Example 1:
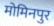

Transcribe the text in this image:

मोमिनपुर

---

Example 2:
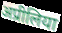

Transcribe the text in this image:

अप्रीलिया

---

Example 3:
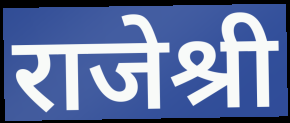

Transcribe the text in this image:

राजेश्री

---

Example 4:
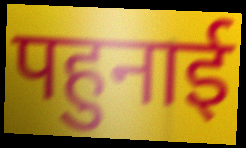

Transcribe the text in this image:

पहुनाई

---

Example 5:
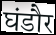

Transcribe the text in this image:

घंडौर